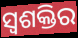
ସ୍ଵଶକ୍ତିର